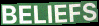
BELIEFS